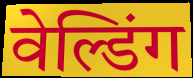
वेल्डिंग